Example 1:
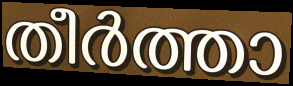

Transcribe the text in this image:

തീർത്താ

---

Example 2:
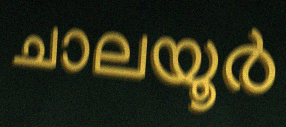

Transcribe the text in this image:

ചാലയൂർ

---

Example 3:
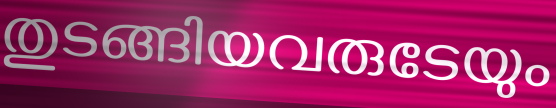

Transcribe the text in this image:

തുടങ്ങിയവരുടേയും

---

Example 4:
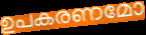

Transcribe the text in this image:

ഉപകരണമോ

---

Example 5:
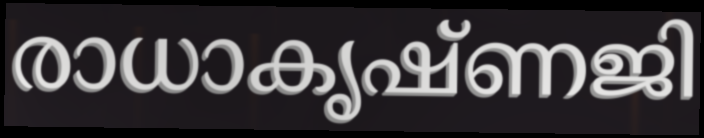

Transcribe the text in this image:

രാധാകൃഷ്ണജി